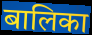
बालिका